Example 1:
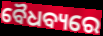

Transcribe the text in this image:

ବୈଧବ୍ୟରେ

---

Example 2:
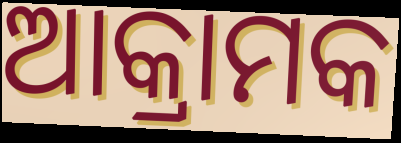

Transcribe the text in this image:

ଆକ୍ରାମକ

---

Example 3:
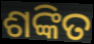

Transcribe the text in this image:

ଶଙ୍କିତ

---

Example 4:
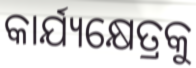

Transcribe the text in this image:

କାର୍ଯ୍ୟକ୍ଷେତ୍ରକୁ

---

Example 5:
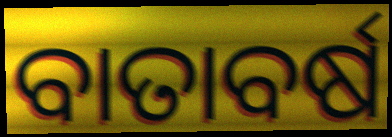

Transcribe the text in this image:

ବାତାବର୍ଷ